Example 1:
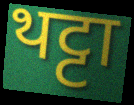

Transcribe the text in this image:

थट्टा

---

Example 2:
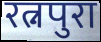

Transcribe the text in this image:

रत्नपुरा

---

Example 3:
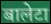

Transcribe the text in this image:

बालेटा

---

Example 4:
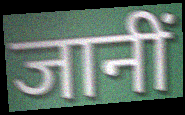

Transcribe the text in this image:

जानीं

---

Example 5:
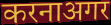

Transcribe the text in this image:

करनाअगर